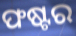
ଫଷ୍ଟର